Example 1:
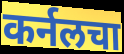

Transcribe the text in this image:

कर्नलचा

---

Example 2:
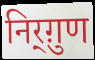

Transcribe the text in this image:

निर्ग़ुण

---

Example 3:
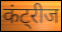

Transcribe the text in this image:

कंट्रीज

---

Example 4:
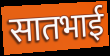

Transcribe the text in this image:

सातभाई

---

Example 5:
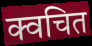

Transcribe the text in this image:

क्वचित